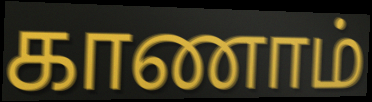
காணாம்